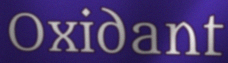
Oxidant